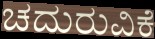
ಚದುರುವಿಕೆ